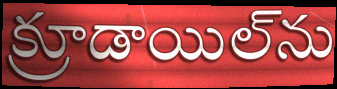
క్రూడాయిల్‌ను